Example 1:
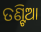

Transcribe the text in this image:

ତଣ୍ଟିଆ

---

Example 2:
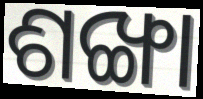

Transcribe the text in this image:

ଶଙ୍ଖା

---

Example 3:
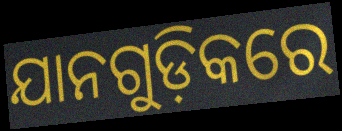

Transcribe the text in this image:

ଯାନଗୁଡ଼ିକରେ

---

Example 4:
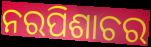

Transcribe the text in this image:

ନରପିଶାଚର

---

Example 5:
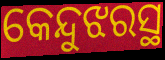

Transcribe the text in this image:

କେନ୍ଦୁଝରସ୍ଥ